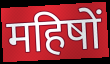
महिषों